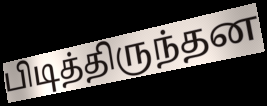
பிடித்திருந்தன